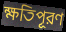
ক্ষতিপূরণ